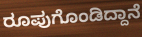
ರೂಪುಗೊಂಡಿದ್ದಾನೆ